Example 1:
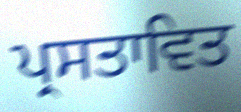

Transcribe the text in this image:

ਪ੍ਰਸਤਾਵਿਤ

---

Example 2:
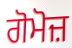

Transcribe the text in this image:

ਗੋਮੋਜ਼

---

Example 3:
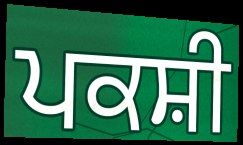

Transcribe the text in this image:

ਪਕਸ਼ੀ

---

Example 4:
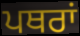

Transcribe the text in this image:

ਪਥਰਾਂ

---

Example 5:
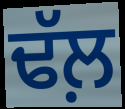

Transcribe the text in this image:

ਢੱਲ਼